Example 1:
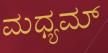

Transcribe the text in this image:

ಮಧ್ಯಮ್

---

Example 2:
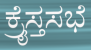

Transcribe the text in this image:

ಕ್ರೈಸ್ತಸಭೆ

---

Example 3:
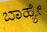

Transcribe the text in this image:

ಬಾಹ್ಯೇ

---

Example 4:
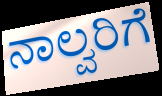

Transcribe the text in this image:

ನಾಲ್ವರಿಗೆ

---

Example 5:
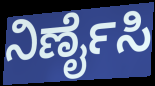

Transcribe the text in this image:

ನಿರ್ಣೈಸಿ